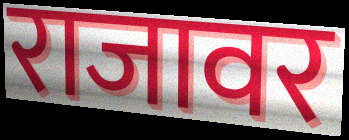
राजावर